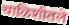
चाळिशीतले